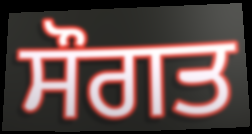
ਸੌਗਤ